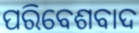
ପରିବେଶବାଦ